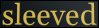
sleeved